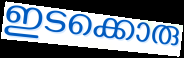
ഇടക്കൊരു